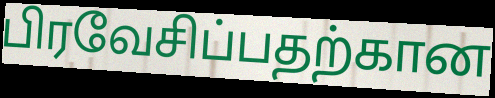
பிரவேசிப்பதற்கான